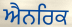
ਐਨਰਿਕ